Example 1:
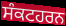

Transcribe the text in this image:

ਸੰਕਟਹਰਨ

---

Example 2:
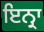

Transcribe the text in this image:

ਇਨ੍ਰਾ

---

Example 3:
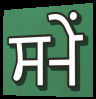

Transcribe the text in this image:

ਸ੍ਮੇਂ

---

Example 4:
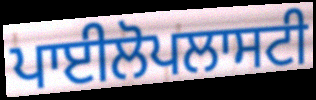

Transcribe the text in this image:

ਪਾਈਲੋਪਲਾਸਟੀ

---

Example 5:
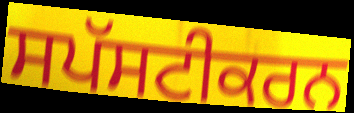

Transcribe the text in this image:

ਸਪੱਸਟੀਕਰਨ